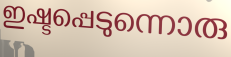
ഇഷ്ടപ്പെടുന്നൊരു